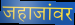
जहाजांवर